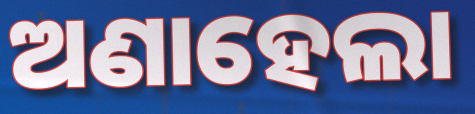
ଅଣାହେଲା